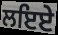
ਲਇਏ